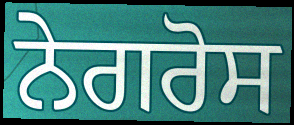
ਨੇਗਰੋਸ